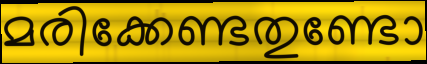
മരിക്കേണ്ടതുണ്ടോ